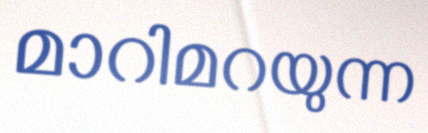
മാറിമറയുന്ന